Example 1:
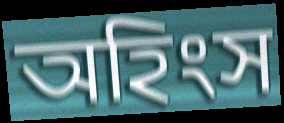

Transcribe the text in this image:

অহিংস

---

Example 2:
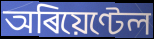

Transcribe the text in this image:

অৰিয়েণ্টেল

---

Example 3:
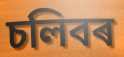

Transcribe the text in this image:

চলিবৰ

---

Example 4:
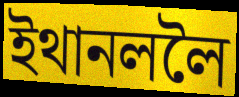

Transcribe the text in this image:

ইথানললৈ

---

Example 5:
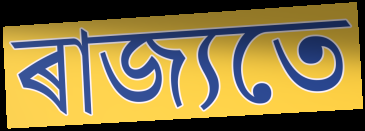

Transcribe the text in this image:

ৰাজ্যতে